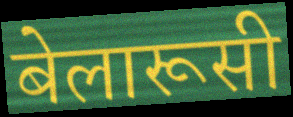
बेलारूसी